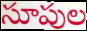
సూపుల